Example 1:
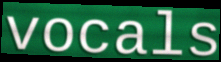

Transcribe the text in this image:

vocals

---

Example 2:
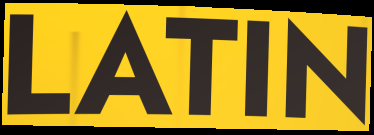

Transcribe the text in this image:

LATIN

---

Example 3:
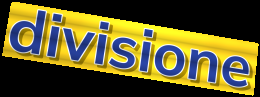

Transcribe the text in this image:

divisione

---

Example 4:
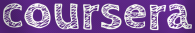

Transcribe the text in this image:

coursera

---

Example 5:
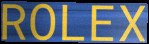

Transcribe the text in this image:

ROLEX